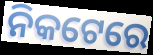
ନିକଟେରେ